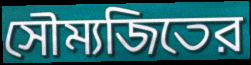
সৌম্যজিতের